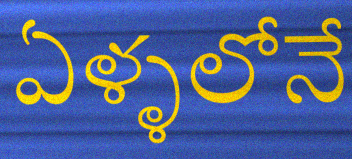
ఏళ్ళలోనే